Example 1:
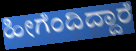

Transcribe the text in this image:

ಹೀಗೆಂದಿದ್ದಾರೆ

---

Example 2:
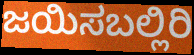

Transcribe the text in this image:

ಜಯಿಸಬಲ್ಲಿರಿ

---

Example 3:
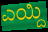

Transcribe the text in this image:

ಎಯ್ದಿ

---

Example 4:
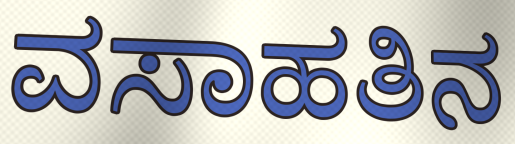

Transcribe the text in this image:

ವಸಾಹತಿನ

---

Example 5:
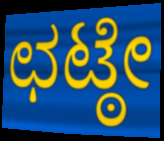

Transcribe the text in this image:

ಛಟ್ಠೇ